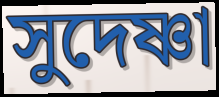
সুদেষ্ণা